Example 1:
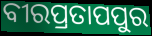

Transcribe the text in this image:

ବୀରପ୍ରତାପପୁର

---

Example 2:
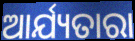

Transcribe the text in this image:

ଆର୍ଯ୍ୟତାରା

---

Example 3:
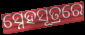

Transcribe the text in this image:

ସ୍ନେହସୂତ୍ରରେ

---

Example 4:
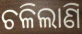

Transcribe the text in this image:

ଚଳିଲାଣି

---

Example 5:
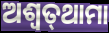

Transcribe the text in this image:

ଅଶ୍ଵତ୍‌ଥାମା